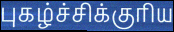
புகழ்ச்சிக்குரிய